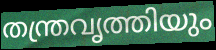
തന്ത്രവൃത്തിയും